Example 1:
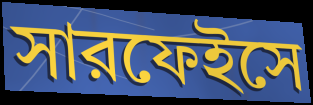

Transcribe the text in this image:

সারফেইসে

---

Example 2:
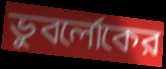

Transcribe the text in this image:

ভুবর্লোকের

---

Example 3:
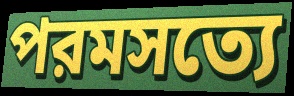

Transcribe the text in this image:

পরমসত্যে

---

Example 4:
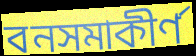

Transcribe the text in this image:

বনসমাকীর্ণ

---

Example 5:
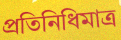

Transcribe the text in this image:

প্রতিনিধিমাত্র